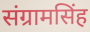
संग्रामसिंह